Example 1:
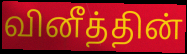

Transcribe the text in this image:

வினீத்தின்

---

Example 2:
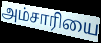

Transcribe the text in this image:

அம்சாரியை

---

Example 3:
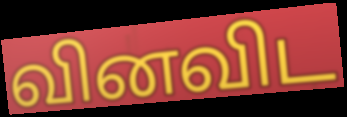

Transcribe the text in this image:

வினவிட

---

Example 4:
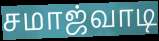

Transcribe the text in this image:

சமாஜ்வாடி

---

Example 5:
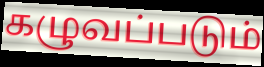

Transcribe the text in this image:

கழுவப்படும்